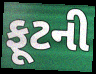
ફૂટની